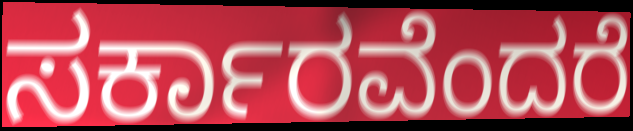
ಸರ್ಕಾರವೆಂದರೆ